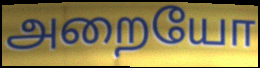
அறையோ